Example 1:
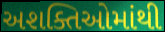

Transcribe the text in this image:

અશક્તિઓમાંથી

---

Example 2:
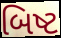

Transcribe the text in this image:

બિષ્ટ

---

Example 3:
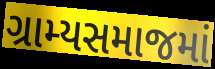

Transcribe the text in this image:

ગ્રામ્યસમાજમાં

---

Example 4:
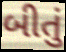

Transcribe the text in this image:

બીતું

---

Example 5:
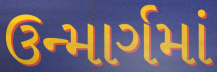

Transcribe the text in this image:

ઉન્માર્ગમાં